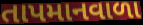
તાપમાનવાળા